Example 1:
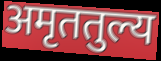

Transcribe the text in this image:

अमृततुल्य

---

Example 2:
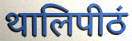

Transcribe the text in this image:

थालिपीठं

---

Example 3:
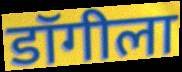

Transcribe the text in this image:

डॉगीला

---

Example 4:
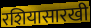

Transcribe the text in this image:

रशियासारखी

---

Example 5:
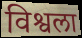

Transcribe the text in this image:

विश्वला